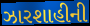
ઝારશાહીની